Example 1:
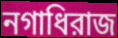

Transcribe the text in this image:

নগাধিরাজ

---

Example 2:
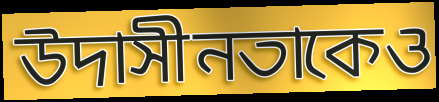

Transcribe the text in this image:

উদাসীনতাকেও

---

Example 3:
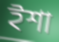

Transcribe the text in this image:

ইশা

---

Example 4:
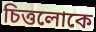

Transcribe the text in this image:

চিত্তলোকে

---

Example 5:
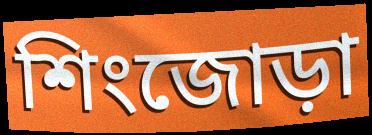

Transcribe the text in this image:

শিংজোড়া